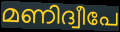
മണിദ്വീപേ